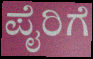
ಪೈರಿಗೆ